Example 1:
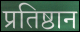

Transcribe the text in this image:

प्रतिष्ठान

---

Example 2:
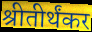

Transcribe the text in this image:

श्रीतीर्थंकर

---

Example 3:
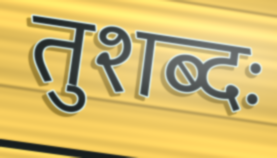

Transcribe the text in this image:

तुशब्दः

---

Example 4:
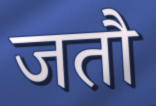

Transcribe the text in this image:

जतौ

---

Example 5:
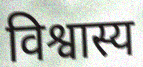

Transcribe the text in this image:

विश्वास्य